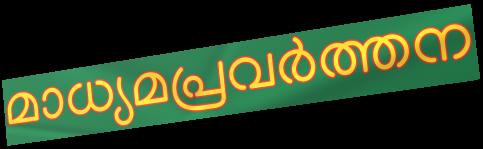
മാധ്യമപ്രവർത്തന